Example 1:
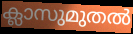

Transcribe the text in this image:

ക്ലാസുമുതൽ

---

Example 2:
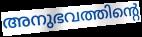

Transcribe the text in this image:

അനുഭവത്തിന്റെ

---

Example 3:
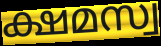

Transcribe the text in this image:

ക്ഷമസ്വ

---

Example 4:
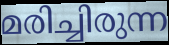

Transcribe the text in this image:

മരിച്ചിരുന്ന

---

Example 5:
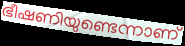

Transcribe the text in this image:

ഭീഷണിയുണ്ടെന്നാണ്